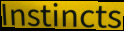
Instincts